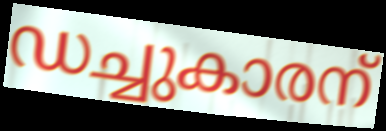
ഡച്ചുകാരന്